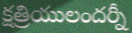
క్షత్రియులందర్నీ